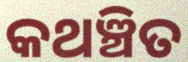
କଥଞ୍ଚିତ